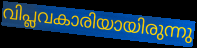
വിപ്ലവകാരിയായിരുന്നു